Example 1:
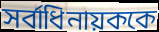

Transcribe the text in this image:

সর্বাধিনায়ককে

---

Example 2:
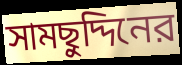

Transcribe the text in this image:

সামছুদ্দিনের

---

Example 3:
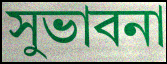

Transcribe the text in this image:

সুভাবনা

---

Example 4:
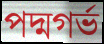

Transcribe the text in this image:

পদ্মগর্ভ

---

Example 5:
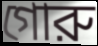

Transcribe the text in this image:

গোরু